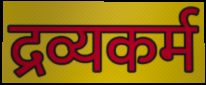
द्रव्यकर्म